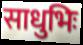
साधुभिः